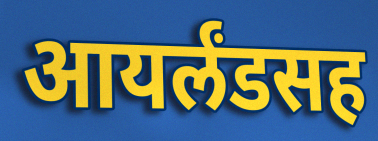
आयर्लंडसह